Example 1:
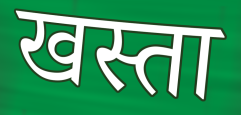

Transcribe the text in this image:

खस्ता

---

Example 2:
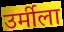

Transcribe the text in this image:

उर्मीला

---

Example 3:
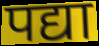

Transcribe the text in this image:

पद्या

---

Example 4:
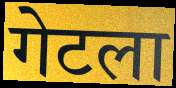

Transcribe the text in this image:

गेटला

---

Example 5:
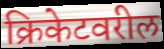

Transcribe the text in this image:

क्रिकेटवरील